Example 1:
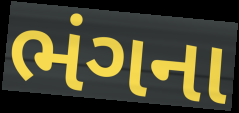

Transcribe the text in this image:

ભંગના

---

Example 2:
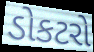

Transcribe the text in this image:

ડોકટરો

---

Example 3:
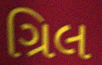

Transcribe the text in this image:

ગ્રિલ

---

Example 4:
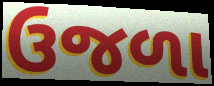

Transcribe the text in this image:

ઉજળા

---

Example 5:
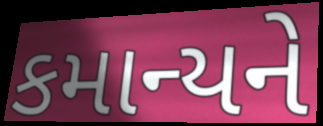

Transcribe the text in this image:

કમાન્યને